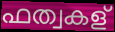
ഫത്വകള്